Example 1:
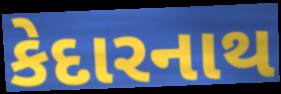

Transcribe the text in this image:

કેદારનાથ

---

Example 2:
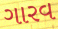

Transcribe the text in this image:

ગારવ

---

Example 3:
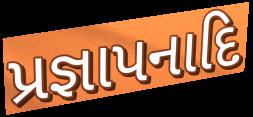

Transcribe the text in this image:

પ્રજ્ઞાપનાદિ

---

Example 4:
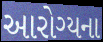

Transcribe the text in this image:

આરોગ્યના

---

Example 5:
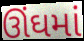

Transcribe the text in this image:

ઊંઘમાં